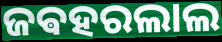
ଜଵହରଲାଲ